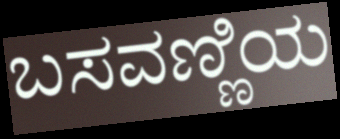
ಬಸವಣ್ಣಿಯ